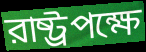
রাষ্ট্রপক্ষে